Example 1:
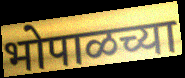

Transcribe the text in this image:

भोपाळच्या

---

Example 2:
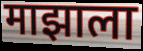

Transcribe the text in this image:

माझाला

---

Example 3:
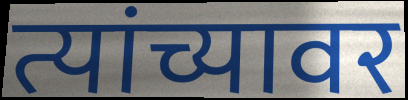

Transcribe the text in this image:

त्यांच्यावर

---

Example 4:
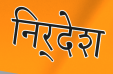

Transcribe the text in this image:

निर्देश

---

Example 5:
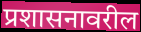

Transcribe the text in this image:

प्रशासनावरील